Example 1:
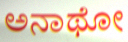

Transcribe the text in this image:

ಅನಾಥೋ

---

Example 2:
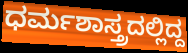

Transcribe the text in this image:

ಧರ್ಮಶಾಸ್ತ್ರದಲ್ಲಿದ್ದ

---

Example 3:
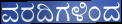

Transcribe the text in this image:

ವರದಿಗಳಿಂದ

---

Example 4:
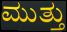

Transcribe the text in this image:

ಮುತ್ತು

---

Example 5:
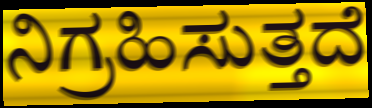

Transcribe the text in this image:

ನಿಗ್ರಹಿಸುತ್ತದೆ